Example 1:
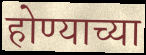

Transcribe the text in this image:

होण्याच्या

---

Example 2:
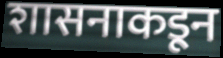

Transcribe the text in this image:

शासनाकडून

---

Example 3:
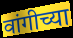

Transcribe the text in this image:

वांगीच्या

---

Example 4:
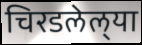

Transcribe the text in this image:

चिरडलेल्या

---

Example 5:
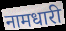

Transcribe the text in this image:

नामधारी